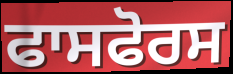
ਫਾਸਫੋਰਸ